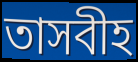
তাসবীহ